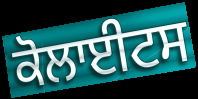
ਕੋਲਾਈਟਸ